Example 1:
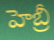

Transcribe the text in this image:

హెబ్రీ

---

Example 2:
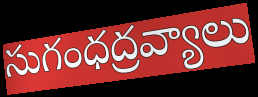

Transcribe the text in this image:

సుగంధద్రవ్యాలు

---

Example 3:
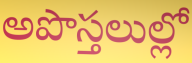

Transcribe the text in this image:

అపొస్తలుల్లో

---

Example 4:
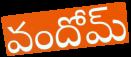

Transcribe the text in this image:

వందోమ్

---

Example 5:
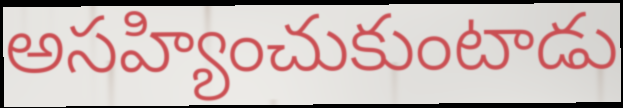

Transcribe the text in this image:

అసహ్యించుకుంటాడు